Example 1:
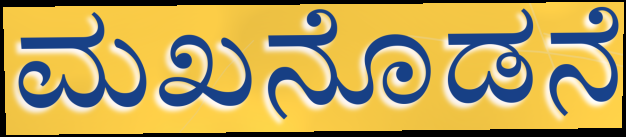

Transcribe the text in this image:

ಮಖನೊಡನೆ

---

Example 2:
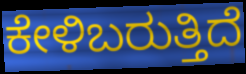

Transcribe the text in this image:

ಕೇಳಿಬರುತ್ತಿದೆ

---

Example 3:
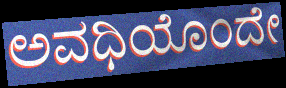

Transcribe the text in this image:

ಅವಧಿಯೊಂದೇ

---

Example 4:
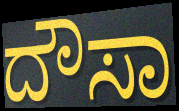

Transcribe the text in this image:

ದೌಸಾ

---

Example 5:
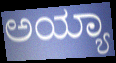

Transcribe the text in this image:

ಅಯ್ಯಾ